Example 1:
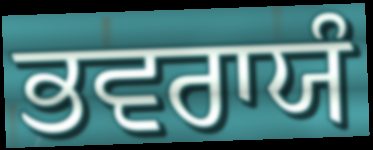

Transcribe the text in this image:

ਭਵਰਾਯੰ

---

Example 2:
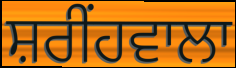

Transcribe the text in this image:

ਸ਼ਰੀਂਹਵਾਲਾ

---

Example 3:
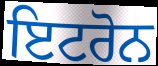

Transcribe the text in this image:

ਇਟਰੋਨ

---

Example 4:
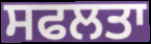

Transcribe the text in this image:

ਸਫਲਤਾ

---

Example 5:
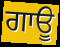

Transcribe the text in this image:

ਗਾਊ